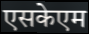
एसकेएम